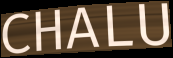
CHALU